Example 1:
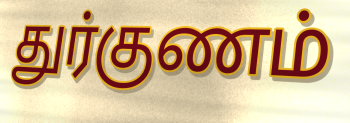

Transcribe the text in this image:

துர்குணம்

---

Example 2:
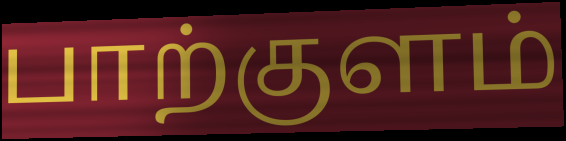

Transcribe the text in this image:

பாற்குளம்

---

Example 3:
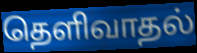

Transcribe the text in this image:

தெளிவாதல்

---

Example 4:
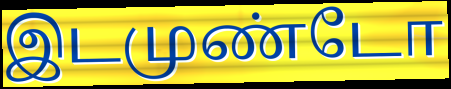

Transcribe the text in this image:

இடமுண்டோ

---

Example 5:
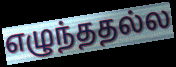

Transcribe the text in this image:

எழுந்ததல்ல